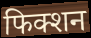
फिक्शन